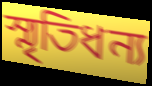
স্মৃতিধন্য